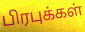
பிரபுக்கள்